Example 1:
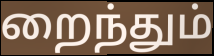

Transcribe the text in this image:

றைந்தும்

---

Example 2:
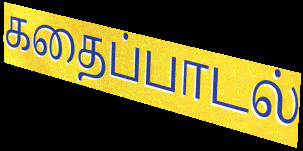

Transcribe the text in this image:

கதைப்பாடல்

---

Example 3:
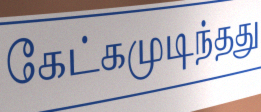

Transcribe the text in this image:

கேட்கமுடிந்தது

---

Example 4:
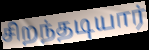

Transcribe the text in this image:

சிறந்தடியார்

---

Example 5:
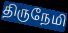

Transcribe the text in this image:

திருநேமி